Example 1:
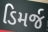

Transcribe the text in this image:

ડિમર્જ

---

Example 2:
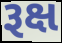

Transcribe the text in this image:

રૂક્ષ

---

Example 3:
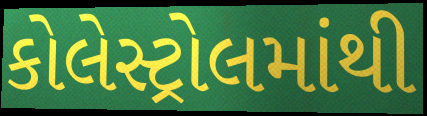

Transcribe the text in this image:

કોલેસ્ટ્રોલમાંથી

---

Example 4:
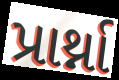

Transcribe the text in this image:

પ્રાર્થ્ના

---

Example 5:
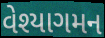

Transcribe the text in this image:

વેશ્યાગમન